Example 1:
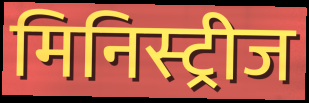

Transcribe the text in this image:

मिनिस्ट्रीज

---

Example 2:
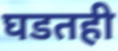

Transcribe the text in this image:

घडतही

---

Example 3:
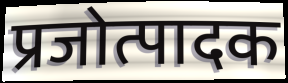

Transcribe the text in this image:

प्रजोत्पादक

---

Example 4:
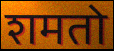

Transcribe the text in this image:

शमतो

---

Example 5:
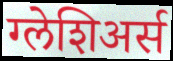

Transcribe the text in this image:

ग्लेशिअर्स